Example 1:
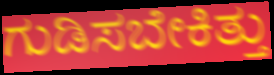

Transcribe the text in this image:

ಗುಡಿಸಬೇಕಿತ್ತು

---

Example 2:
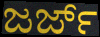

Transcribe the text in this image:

ಜರ್ಜ್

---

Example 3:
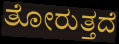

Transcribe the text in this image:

ತೋರುತ್ತದೆ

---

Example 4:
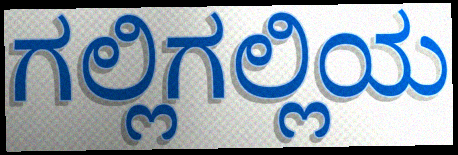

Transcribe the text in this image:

ಗಲ್ಲಿಗಲ್ಲಿಯ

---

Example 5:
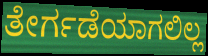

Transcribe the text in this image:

ತೇರ್ಗಡೆಯಾಗಲಿಲ್ಲ